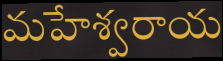
మహేశ్వరాయ